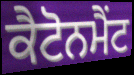
ਕੈਟੋਨਮੈਂਟ